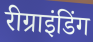
रीग्राइंडिंग